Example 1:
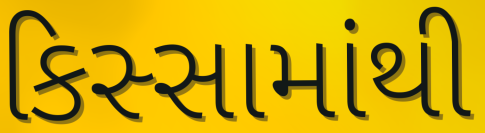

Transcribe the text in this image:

કિસ્સામાંથી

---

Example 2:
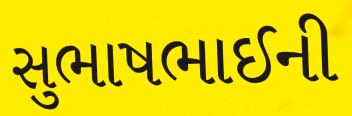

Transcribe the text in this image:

સુભાષભાઈની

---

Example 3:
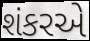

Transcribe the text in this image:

શંકરએ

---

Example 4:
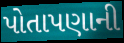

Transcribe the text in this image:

પોતાપણાની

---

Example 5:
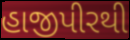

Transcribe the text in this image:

હાજીપીરથી